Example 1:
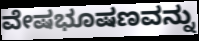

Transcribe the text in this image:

ವೇಷಭೂಷಣವನ್ನು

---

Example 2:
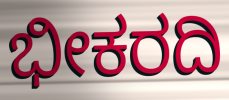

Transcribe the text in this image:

ಭೀಕರದಿ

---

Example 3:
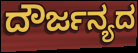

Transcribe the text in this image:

ದೌರ್ಜನ್ಯದ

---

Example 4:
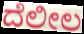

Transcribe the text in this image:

ದೆಲೀಲ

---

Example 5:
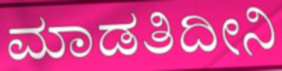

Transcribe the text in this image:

ಮಾಡತಿದೀನಿ